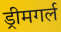
ड्रीमगर्ल